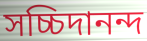
সচ্চিদানন্দ